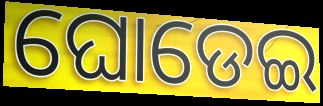
ଘୋଡେଇ